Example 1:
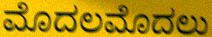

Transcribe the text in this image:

ಮೊದಲಮೊದಲು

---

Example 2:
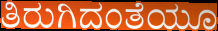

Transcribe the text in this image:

ತಿರುಗಿದಂತೆಯೂ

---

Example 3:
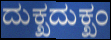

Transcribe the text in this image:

ದುಕ್ಖದುಕ್ಖಂ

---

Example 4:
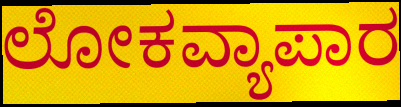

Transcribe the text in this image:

ಲೋಕವ್ಯಾಪಾರ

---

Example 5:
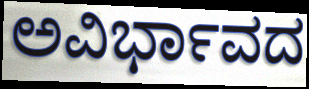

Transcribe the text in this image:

ಅವಿರ್ಭಾವದ